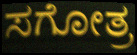
ಸಗೋತ್ರ